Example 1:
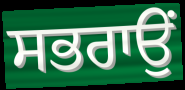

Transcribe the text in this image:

ਸਭਰਾਉਂ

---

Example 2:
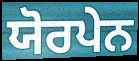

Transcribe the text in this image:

ਯੋਰਪੇਨ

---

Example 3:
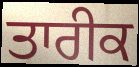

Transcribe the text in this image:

ਤਾਰੀਕ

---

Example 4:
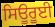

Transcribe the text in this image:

ਸਿਊਰੂਈ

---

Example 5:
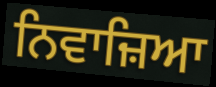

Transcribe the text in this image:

ਨਿਵਾਜ਼ਿਆ